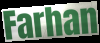
Farhan